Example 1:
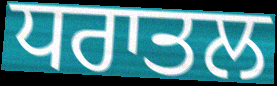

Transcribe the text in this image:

ਧਰਾਤਲ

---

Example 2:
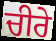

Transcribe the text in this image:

ਚੀਰੇ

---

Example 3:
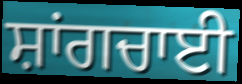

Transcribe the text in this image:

ਸ਼ਾਂਗਚਾਈ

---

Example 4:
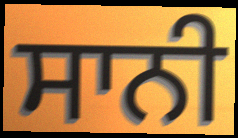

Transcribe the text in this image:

ਸਾਨੀ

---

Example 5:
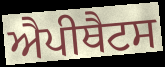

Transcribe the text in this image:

ਐਪੀਥੈਟਸ